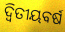
ଦ୍ୱିତୀୟବର୍ଷ